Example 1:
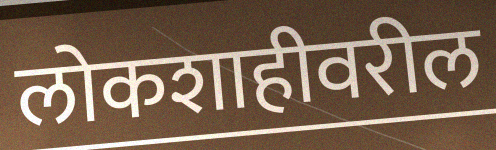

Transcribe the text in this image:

लोकशाहीवरील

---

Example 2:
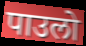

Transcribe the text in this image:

पाउलो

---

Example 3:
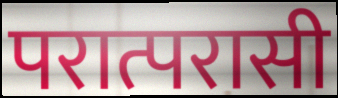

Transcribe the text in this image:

परात्परासी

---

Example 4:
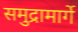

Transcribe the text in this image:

समुद्रामार्गे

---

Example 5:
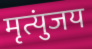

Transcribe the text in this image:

मृत्युंजय